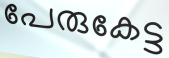
പേരുകേട്ട